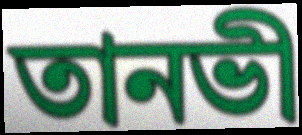
তানভী